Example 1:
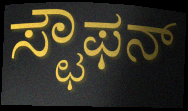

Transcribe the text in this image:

ಸ್ಟೌಫನ್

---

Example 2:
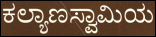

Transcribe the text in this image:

ಕಲ್ಯಾಣಸ್ವಾಮಿಯ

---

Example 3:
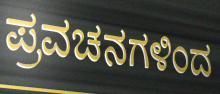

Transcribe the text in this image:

ಪ್ರವಚನಗಳಿಂದ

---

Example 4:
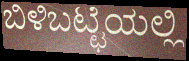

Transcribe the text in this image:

ಬಿಳಿಬಟ್ಟೆಯಲ್ಲಿ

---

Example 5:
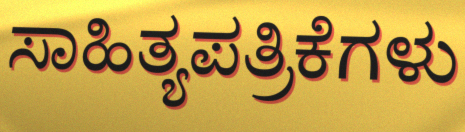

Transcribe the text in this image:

ಸಾಹಿತ್ಯಪತ್ರಿಕೆಗಳು